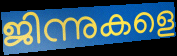
ജിന്നുകളെ